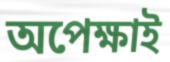
অপেক্ষাই